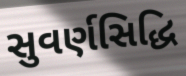
સુવર્ણસિદ્ધિ